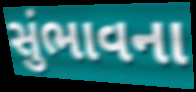
સુંભાવના